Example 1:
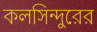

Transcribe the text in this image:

কলসিন্দুরের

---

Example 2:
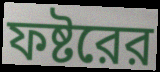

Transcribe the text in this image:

ফষ্টরের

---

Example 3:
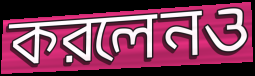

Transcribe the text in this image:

করলেনও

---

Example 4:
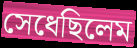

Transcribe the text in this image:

সেধেছিলেম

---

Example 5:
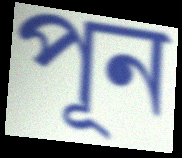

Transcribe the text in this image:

পূন